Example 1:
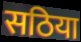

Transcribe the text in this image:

सठिया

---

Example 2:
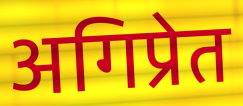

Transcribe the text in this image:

अगिप्रेत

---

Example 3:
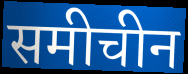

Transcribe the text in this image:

समीचीन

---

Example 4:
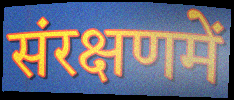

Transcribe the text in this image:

संरक्षणमें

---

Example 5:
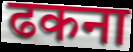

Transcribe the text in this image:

ढकना